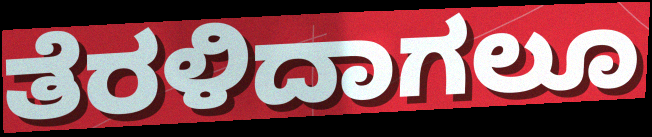
ತೆರಳಿದಾಗಲೂ